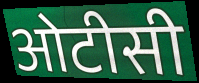
ओटीसी